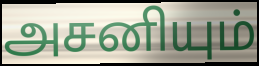
அசனியும்